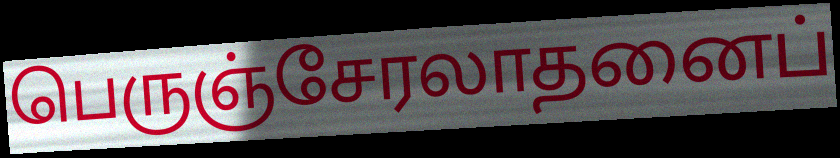
பெருஞ்சேரலாதனைப்